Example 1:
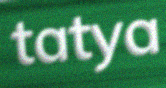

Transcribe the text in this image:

tatya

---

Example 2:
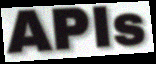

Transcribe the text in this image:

APIs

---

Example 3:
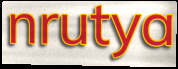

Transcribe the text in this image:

nrutya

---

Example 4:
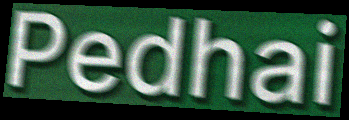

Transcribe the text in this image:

Pedhai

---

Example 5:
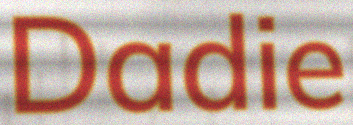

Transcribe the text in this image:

Dadie